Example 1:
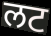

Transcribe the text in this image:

लट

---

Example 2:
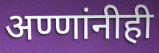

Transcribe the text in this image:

अण्णांनीही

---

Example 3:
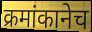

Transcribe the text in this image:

क्रमांकानेच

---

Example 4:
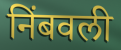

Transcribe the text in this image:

निंबवली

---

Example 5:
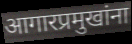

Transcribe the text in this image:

आगारप्रमुखांना